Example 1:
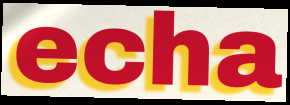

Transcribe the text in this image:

echa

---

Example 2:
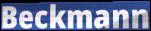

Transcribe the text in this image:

Beckmann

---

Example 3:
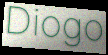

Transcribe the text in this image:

Diogo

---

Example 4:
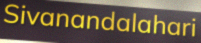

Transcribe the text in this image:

Sivanandalahari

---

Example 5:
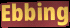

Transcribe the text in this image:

Ebbing